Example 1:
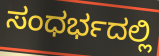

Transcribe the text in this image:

ಸಂಧರ್ಭದಲ್ಲಿ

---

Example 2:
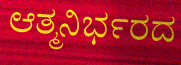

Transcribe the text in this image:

ಆತ್ಮನಿರ್ಭರದ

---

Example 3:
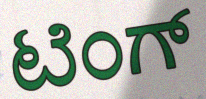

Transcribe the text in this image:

ಟೆಂಗ್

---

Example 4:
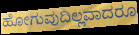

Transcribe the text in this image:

ಹೋಗುವುದಿಲ್ಲವಾದರೂ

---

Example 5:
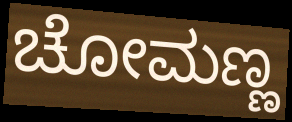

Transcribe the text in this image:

ಚೋಮಣ್ಣ